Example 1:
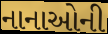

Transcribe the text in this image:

નાનાઓની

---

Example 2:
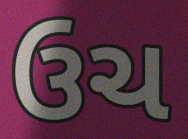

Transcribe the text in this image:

ઉચ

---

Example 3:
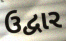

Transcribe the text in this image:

ઉદ્વાર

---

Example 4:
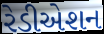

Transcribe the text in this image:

રેડીએશન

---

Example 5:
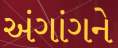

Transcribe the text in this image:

અંગાંગને